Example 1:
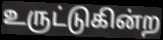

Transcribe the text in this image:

உருட்டுகின்ற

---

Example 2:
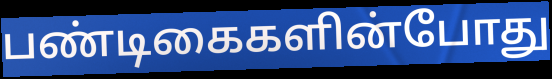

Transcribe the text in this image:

பண்டிகைகளின்போது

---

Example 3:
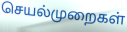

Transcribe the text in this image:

செயல்முறைகள்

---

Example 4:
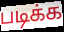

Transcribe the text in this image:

படிக்க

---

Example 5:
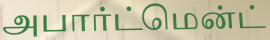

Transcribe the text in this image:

அபார்ட்மென்ட்